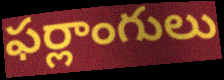
ఫర్లాంగులు